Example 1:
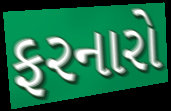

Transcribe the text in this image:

ફરનારો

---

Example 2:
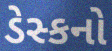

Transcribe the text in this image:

ડેસ્કનો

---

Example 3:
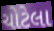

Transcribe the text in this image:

ચોટેલા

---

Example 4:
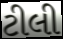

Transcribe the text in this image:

ટીલી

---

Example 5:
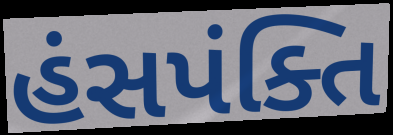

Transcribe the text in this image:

હંસપંક્તિ